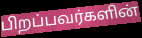
பிறப்பவர்களின்